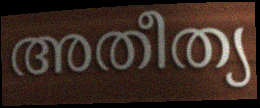
അതീത്യ